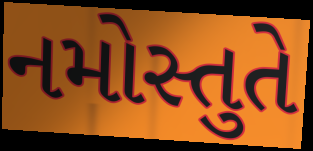
નમોસ્તુતે